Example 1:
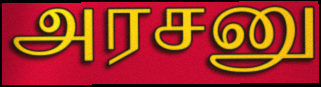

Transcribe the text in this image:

அரசனு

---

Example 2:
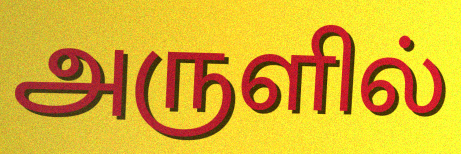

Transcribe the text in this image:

அருளில்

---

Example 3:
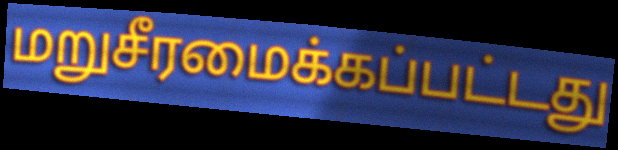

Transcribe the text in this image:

மறுசீரமைக்கப்பட்டது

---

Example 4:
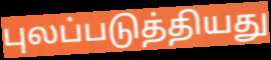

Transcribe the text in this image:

புலப்படுத்தியது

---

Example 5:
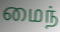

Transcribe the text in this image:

மைந்